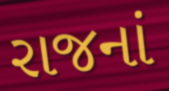
રાજનાં